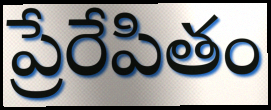
ప్రేరేపితం